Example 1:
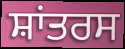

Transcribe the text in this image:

ਸ਼ਾਂਤਰਸ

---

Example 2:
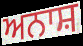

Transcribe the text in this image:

ਅਨਾਸ਼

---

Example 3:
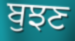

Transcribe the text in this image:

ਬੁਝਣ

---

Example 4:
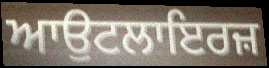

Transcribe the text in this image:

ਆਉਟਲਾਇਰਜ਼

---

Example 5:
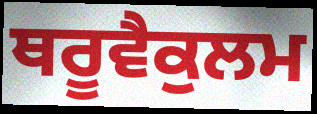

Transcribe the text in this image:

ਥਰੂਵੈਕੁਲਮ